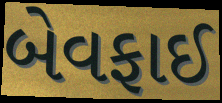
બેવફાઈ